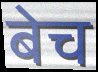
बेच